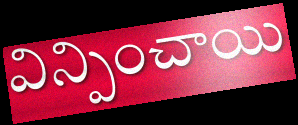
విన్పించాయి